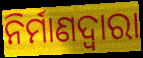
ନିର୍ମାଣଦ୍ୱାରା